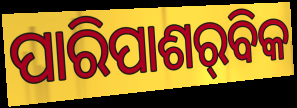
ପାରିପାଶର୍‌ବିକ